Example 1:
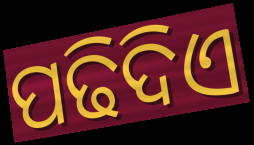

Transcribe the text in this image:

ପଢିଦିଏ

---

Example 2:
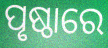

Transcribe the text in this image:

ପୃଷ୍ଠାରେ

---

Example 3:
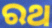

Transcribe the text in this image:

ରଥ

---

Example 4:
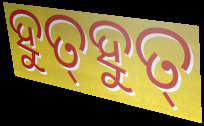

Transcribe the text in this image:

ହୁତ୍‌ହୁତ୍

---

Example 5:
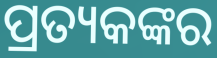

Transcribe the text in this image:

ପ୍ରତ୍ୟକଙ୍କର